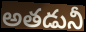
అతడునీ